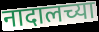
नादालच्या